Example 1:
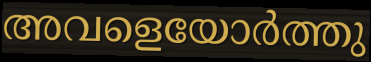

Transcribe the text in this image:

അവളെയോർത്തു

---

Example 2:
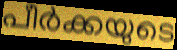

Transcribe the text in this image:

പീർക്കയുടെ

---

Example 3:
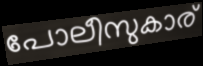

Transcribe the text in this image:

പോലീസുകാര്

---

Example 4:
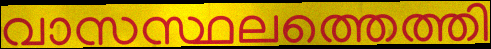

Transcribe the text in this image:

വാസസ്ഥലത്തെത്തി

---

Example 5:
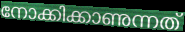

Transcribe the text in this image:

നോക്കിക്കാണുന്നത്